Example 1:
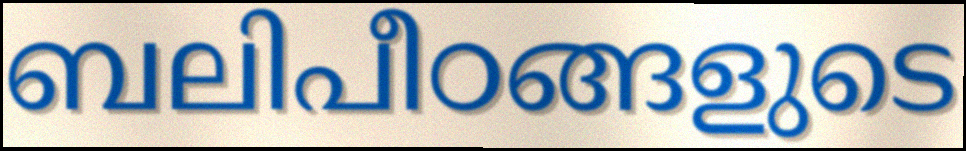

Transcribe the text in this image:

ബലിപീഠങ്ങളുടെ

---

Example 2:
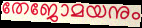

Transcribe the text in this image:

തേജോമയനും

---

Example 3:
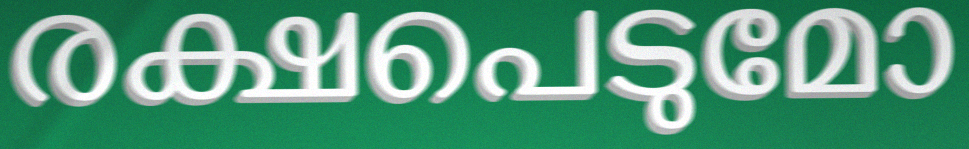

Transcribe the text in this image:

രക്ഷപെടുമോ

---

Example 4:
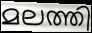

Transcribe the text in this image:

മലത്തി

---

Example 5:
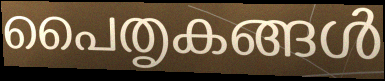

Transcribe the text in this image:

പൈതൃകങ്ങൾ